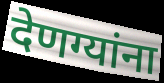
देणग्यांना